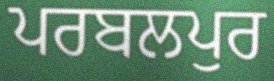
ਪਰਬਲਪੁਰ